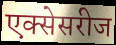
एक्सेसरीज